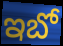
ఇబో